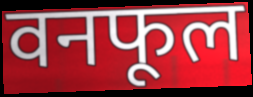
वनफूल